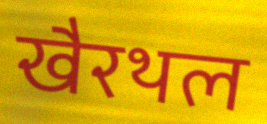
खैरथल